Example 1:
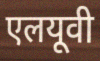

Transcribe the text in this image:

एलयूवी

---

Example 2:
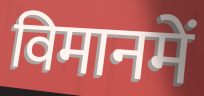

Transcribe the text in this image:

विमानमें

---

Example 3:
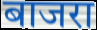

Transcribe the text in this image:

बाजरा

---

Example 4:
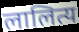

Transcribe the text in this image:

लालित्य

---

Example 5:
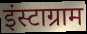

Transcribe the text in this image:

इंस्टाग्राम